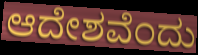
ಆದೇಶವೆಂದು